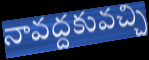
నావద్దకువచ్చి